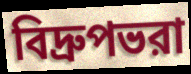
বিদ্রুপভরা